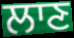
ਲਾਣ